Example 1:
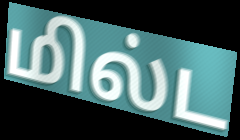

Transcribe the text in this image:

மில்ட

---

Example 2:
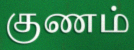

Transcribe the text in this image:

குணம்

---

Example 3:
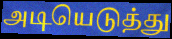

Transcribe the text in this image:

அடியெடுத்து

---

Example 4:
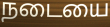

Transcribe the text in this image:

நடையை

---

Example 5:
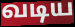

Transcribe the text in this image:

வடிய